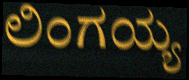
ಲಿಂಗಯ್ಯ